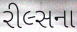
રીલ્સના